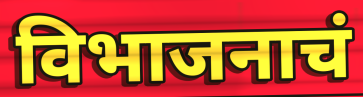
विभाजनाचं